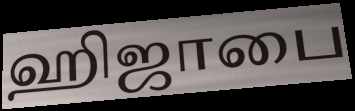
ஹிஜாபை